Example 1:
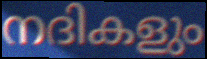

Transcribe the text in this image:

നദികളും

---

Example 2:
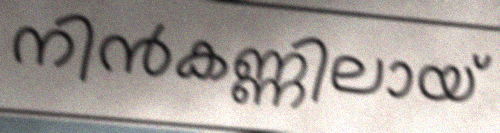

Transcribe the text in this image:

നിൻകണ്ണിലായ്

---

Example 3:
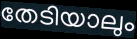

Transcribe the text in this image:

തേടിയാലും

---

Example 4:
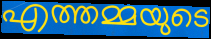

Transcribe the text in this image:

എത്തമ്മയുടെ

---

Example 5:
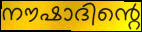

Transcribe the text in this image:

നൗഷാദിന്റെ